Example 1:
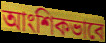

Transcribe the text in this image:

আংশিকভাবে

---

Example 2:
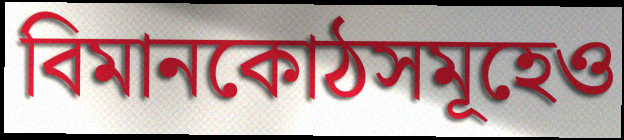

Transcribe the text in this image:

বিমানকোঠসমূহেও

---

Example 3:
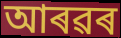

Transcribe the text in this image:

আৰৱৰ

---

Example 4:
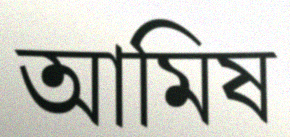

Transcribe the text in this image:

আমিষ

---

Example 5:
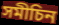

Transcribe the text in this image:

সমীচিন